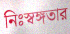
নিঃস্বঙ্গতার